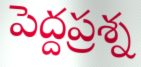
పెద్దప్రశ్న